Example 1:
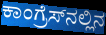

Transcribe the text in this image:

ಕಾಂಗ್ರೆಸ್‌ನಲ್ಲಿನ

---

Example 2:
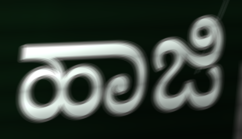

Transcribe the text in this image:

ಹಾಜಿ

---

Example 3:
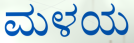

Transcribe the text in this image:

ಮಳಯ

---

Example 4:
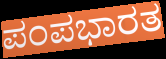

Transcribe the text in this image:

ಪಂಪಭಾರತ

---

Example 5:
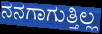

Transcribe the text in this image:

ನನಗಾಗುತ್ತಿಲ್ಲ